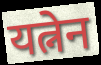
यत्नेन